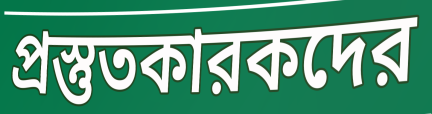
প্রস্তুতকারকদের